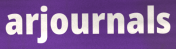
arjournals